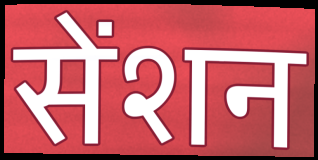
सेंशन